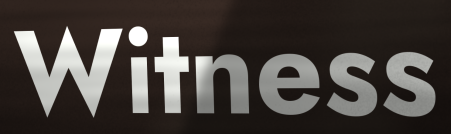
Witness